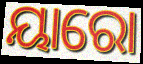
ୟାରୋ